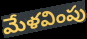
మేళవింపు